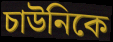
চাউনিকে